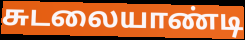
சுடலையாண்டி